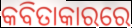
କବିତାକାରରେ